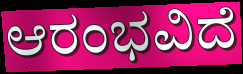
ಆರಂಭವಿದೆ